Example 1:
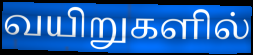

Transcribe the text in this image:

வயிறுகளில்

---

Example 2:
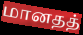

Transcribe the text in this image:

மானதத்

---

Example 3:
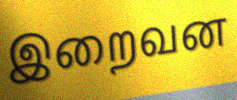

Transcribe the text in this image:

இறைவன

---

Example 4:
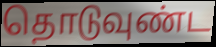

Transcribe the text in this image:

தொடுவுண்ட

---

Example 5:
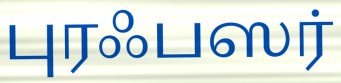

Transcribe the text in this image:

புரஃபஸர்